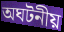
অঘটনীয়